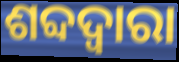
ଶବ୍ଦଦ୍ୱାରା